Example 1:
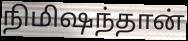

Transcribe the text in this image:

நிமிஷந்தான்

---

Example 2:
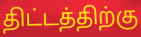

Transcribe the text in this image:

திட்டத்திற்கு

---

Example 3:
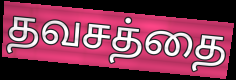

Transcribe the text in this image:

தவசத்தை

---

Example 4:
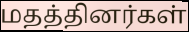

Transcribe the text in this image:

மதத்தினர்கள்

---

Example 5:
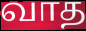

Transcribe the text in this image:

வாத